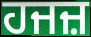
ਹਜਜ਼